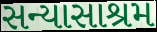
સન્યાસાશ્રમ